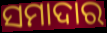
ସମାଦାର